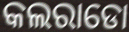
କଲରାଡୋ